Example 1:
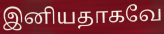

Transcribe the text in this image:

இனியதாகவே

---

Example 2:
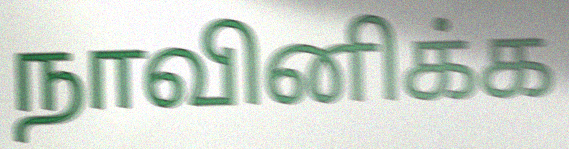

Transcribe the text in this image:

நாவினிக்க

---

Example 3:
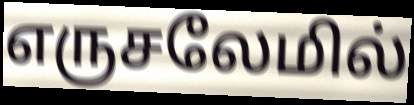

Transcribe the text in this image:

எருசலேமில்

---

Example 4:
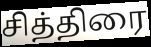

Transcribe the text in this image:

சித்திரை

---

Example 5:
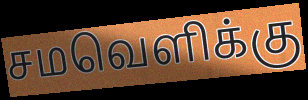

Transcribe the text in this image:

சமவெளிக்கு